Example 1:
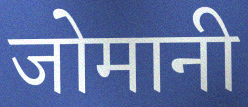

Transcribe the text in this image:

जोमानी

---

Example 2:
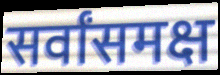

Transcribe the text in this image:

सर्वांसमक्ष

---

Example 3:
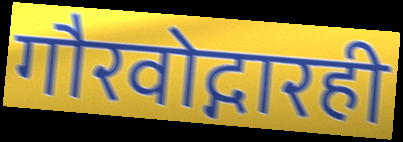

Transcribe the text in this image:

गौरवोद्गारही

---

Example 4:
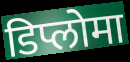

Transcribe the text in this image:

डिप्लोमा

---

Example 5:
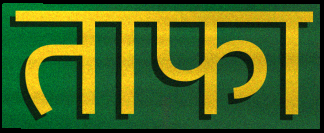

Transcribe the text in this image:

ताफा